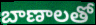
బాణాలతో